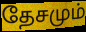
தேசமும்